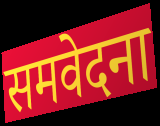
समवेदना